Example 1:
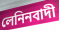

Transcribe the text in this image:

লেনিনবাদী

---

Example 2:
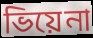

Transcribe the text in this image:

ভিয়েনা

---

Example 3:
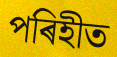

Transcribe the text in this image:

পৰিহীত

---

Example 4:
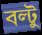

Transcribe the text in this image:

বল্টু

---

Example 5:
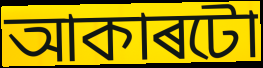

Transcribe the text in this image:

আকাৰটো